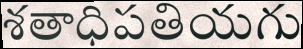
శతాధిపతియగు